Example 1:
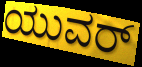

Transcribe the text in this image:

ಯುವರ್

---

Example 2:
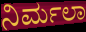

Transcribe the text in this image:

ನಿರ್ಮಲಾ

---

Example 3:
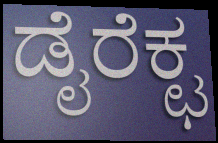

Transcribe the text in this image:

ಡೈರೆಕ್ಟ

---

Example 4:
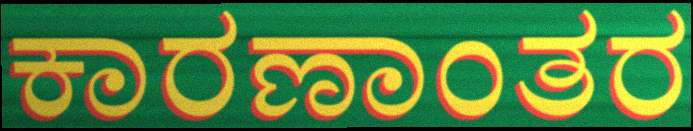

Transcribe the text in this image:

ಕಾರಣಾಂತರ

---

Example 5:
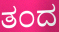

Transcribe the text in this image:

ತಂದ